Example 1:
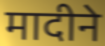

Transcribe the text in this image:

मादीने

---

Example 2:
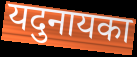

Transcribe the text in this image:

यदुनायका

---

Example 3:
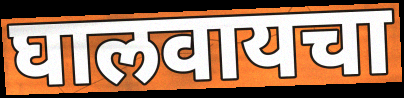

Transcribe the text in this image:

घालवायचा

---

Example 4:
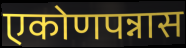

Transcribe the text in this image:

एकोणपन्नास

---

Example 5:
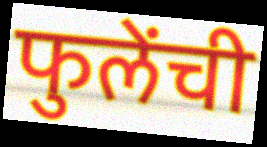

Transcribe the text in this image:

फुलेंची